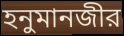
হনুমানজীর